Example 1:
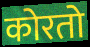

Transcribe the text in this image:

कोरतो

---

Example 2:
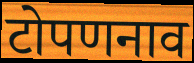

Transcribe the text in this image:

टोपणनाव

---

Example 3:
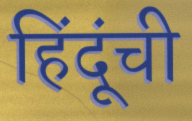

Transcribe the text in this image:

हिंदूंची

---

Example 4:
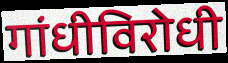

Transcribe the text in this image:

गांधीविरोधी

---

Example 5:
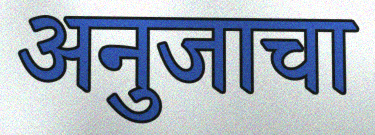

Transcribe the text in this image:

अनुजाचा